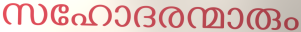
സഹോദരന്മാരും